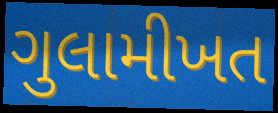
ગુલામીખત